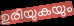
ഉരിയുകയും